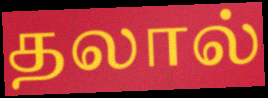
தலால்